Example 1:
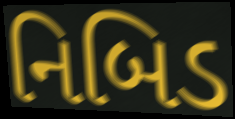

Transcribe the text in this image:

નિબિડ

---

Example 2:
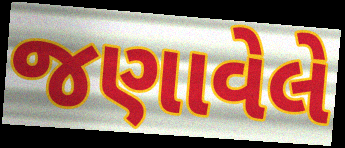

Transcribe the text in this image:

જણાવેલે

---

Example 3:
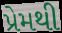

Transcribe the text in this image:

પ્રેમથી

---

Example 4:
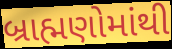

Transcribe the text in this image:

બ્રાહ્મણોમાંથી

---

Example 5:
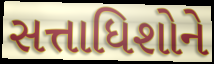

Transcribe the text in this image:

સત્તાધિશોને